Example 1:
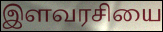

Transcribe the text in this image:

இளவரசியை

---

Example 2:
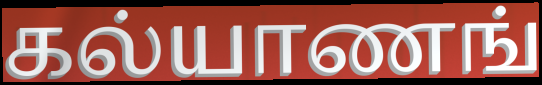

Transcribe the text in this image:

கல்யாணங்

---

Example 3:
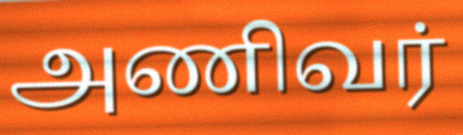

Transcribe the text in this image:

அணிவர்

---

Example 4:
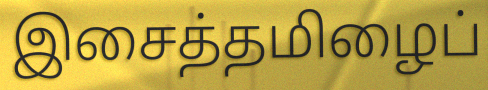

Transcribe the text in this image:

இசைத்தமிழைப்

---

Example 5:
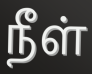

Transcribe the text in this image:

நீள்